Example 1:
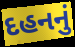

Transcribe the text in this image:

દહનનું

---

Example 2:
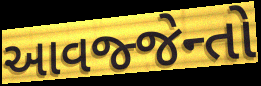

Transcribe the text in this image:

આવજ્જેન્તો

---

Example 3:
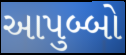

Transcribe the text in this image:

આપુબ્બો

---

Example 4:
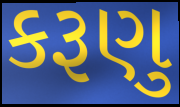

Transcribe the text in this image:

કરૂણુ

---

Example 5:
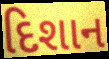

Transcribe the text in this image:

દિશાન